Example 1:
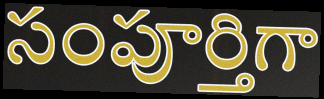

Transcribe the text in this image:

సంపూర్తిగా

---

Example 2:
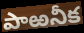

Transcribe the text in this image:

పాఱనీక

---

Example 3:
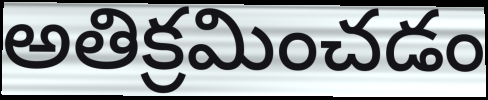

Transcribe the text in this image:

అతిక్రమించడం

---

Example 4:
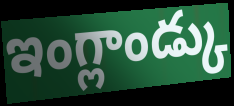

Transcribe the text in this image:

ఇంగ్లాండ్కు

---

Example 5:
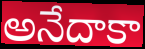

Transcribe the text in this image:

అనేదాకా